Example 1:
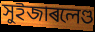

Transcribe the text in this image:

সুইজাৰলেণ্ড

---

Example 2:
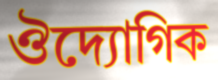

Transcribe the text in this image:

ঔদ্যোগিক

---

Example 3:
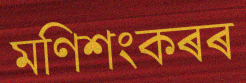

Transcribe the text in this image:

মণিশংকৰৰ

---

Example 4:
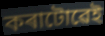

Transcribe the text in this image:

কৰাটোৱেই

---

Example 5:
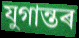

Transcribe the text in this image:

যুগান্তৰ